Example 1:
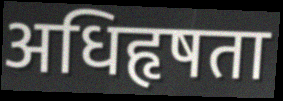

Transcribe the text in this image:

अधिहृषता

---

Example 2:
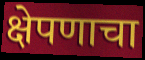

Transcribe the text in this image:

क्षेपणाचा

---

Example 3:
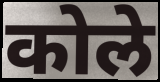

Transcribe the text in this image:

कोले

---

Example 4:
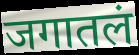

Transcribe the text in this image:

जगातलं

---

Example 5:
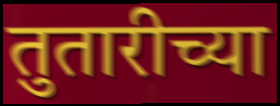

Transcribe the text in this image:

तुतारीच्या